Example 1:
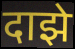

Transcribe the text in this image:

दाझे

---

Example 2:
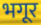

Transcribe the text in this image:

भगूर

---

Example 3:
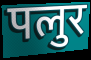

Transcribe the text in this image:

पलुर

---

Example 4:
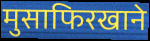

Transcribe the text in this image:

मुसाफिरखाने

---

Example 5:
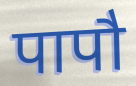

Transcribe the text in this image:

पापौ